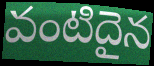
వంటిదైన